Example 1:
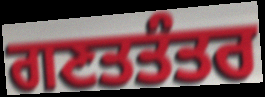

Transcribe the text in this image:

ਗਣਤਤੰਤਰ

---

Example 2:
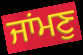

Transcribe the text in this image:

ਜਾਂਮਣੁ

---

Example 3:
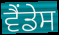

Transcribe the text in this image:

ਵੈਂਡੇਸ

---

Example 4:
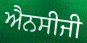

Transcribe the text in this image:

ਐਨਸੀਜੀ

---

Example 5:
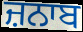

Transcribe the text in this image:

ਜ਼ਨਾਬ